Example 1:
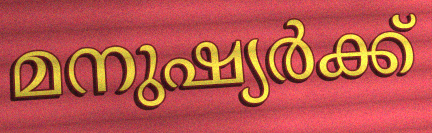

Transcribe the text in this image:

മനുഷ്യർക്ക്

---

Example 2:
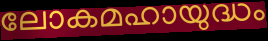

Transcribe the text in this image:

ലോകമഹായുദ്ധം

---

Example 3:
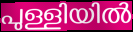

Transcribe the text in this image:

പുള്ളിയിൽ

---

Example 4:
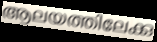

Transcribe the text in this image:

ആലയത്തിലേക്കു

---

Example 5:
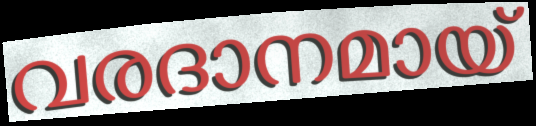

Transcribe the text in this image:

വരദാനമായ്